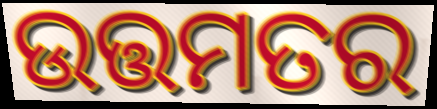
ଉତ୍ତମତର